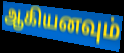
ஆகியனவும்